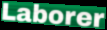
Laborer